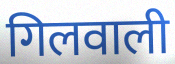
गिलवाली